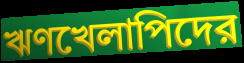
ঋণখেলাপিদের